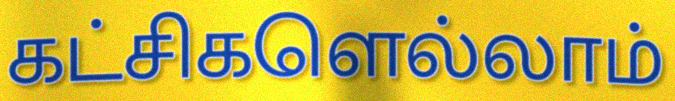
கட்சிகளெல்லாம்